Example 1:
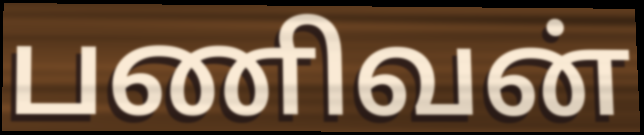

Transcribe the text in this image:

பணிவன்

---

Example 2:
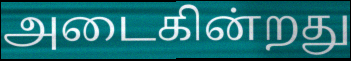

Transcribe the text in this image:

அடைகின்றது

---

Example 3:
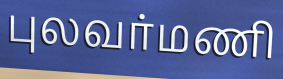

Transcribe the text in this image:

புலவர்மணி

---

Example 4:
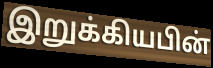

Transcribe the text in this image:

இறுக்கியபின்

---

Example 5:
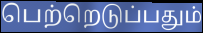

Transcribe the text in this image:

பெற்றெடுப்பதும்